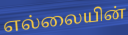
எல்லையின்